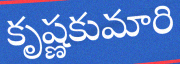
కృష్ణకుమారి